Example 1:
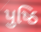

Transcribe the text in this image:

પુષ્ઠિ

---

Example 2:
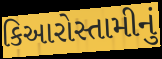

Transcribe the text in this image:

કિઆરોસ્તામીનું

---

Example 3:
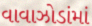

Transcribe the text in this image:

વાવાઝોડાંમાં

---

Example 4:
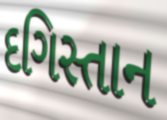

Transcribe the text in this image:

દગિસ્તાન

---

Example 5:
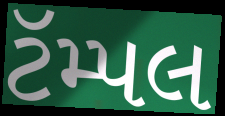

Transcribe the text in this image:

ટૅમ્પલ